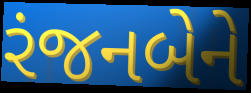
રંજનબેને